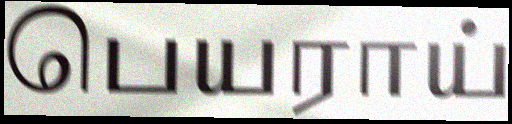
பெயராய்